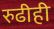
रुढीही